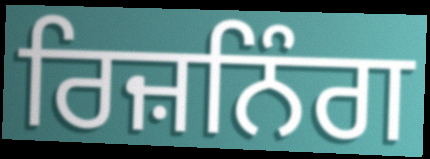
ਰਿਜ਼ਨਿੰਗ